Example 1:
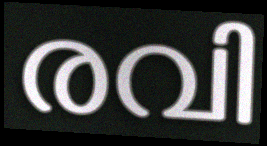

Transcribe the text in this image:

രവി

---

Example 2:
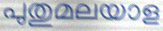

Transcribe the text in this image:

പുതുമലയാള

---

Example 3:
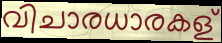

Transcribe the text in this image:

വിചാരധാരകള്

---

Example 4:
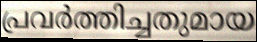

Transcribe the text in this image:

പ്രവർത്തിച്ചതുമായ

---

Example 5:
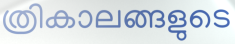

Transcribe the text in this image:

ത്രികാലങ്ങളുടെ